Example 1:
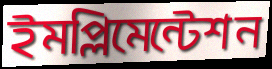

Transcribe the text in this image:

ইমপ্লিমেন্টেশন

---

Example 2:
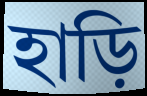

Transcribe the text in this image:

হাড়ি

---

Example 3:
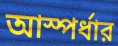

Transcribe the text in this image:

আস্পর্ধার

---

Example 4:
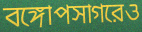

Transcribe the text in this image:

বঙ্গোপসাগরেও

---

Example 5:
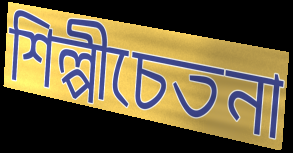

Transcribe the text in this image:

শিল্পীচেতনা